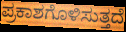
ಪ್ರಕಾಶಗೊಳಿಸುತ್ತದೆ